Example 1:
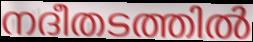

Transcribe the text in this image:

നദീതടത്തിൽ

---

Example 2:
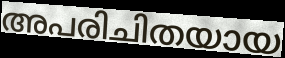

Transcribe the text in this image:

അപരിചിതയായ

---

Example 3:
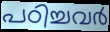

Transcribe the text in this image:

പഠിച്ചവർ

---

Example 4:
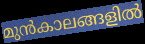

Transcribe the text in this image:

മുൻകാലങ്ങളിൽ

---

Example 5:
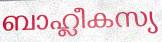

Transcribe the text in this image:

ബാഹ്ലീകസ്യ